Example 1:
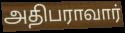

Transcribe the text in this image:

அதிபராவார்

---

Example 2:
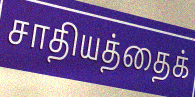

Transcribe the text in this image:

சாதியத்தைக்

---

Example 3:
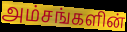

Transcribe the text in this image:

அம்சங்களின்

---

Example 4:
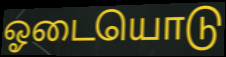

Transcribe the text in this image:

ஓடையொடு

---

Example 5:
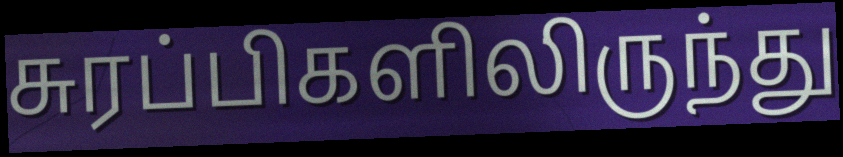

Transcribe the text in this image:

சுரப்பிகளிலிருந்து